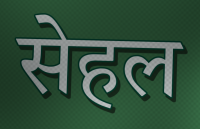
सेहल